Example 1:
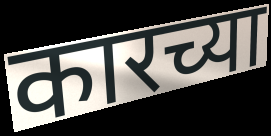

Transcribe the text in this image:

कारच्या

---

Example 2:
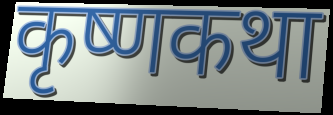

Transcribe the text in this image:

कृष्णकथा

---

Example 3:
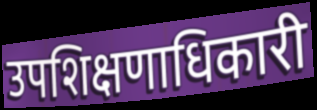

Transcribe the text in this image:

उपशिक्षणाधिकारी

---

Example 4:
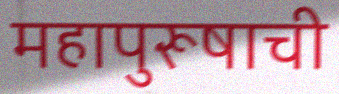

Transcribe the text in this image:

महापुरूषाची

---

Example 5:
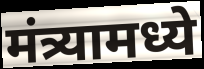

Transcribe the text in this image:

मंत्र्यामध्ये